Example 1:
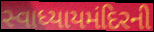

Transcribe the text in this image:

સ્વાધ્યાયમંદિરની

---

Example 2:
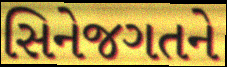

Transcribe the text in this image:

સિનેજગતને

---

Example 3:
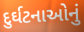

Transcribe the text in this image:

દુર્ઘટનાઓનું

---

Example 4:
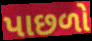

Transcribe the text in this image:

પાછળો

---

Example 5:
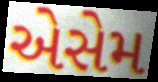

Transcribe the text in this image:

એસેમ